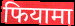
फियामा